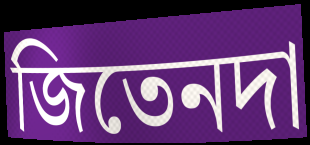
জিতেনদা